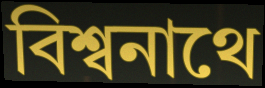
বিশ্বনাথে